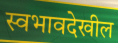
स्वभावदेखील